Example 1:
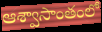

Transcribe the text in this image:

ఆశ్వాసాంతంలో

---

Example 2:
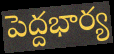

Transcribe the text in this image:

పెద్దభార్య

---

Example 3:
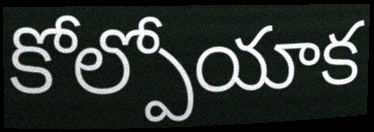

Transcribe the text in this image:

కోల్పోయాక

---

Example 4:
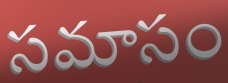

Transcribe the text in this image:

సమాసం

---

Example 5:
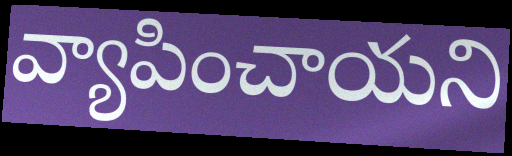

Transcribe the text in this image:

వ్యాపించాయని